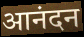
आनंदन